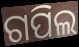
ଗପିଲ